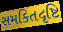
સમકિતદૃષ્ટિ